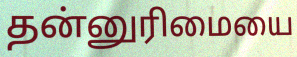
தன்னுரிமையை